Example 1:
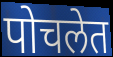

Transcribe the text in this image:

पोचलेत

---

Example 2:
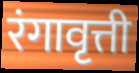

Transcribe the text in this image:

रंगावृत्ती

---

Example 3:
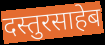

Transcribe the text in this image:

दस्तुरसाहेब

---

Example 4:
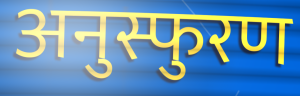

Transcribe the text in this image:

अनुस्फुरण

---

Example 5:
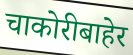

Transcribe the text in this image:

चाकोरीबाहेर